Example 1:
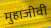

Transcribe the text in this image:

मुहाजीवी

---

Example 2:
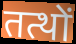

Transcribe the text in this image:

तत्थों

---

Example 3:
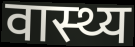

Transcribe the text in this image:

वास्थ्य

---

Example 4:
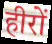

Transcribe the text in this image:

हीरों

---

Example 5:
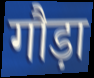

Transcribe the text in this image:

गौड़ा